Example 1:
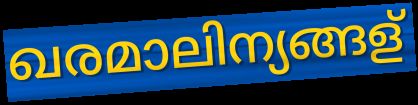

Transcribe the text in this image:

ഖരമാലിന്യങ്ങള്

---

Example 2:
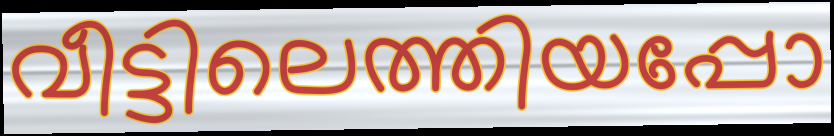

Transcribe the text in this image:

വീട്ടിലെത്തിയപ്പോ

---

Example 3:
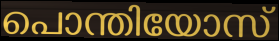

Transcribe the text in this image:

പൊന്തിയോസ്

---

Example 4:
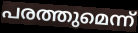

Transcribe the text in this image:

പരത്തുമെന്ന്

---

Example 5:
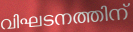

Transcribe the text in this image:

വിഘടനത്തിന്